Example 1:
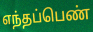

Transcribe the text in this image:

எந்தப்பெண்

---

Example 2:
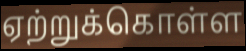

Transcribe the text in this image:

ஏற்றுக்கொள்ள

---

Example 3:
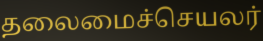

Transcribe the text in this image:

தலைமைச்செயலர்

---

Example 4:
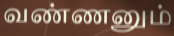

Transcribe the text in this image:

வண்ணனும்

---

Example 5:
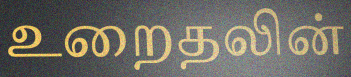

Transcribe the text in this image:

உறைதலின்